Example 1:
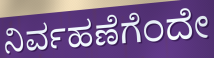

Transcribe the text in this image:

ನಿರ್ವಹಣೆಗೆಂದೇ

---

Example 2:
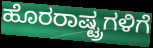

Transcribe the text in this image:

ಹೊರರಾಷ್ಟ್ರಗಳಿಗೆ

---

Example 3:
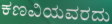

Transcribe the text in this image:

ಕಣವಿಯವರದು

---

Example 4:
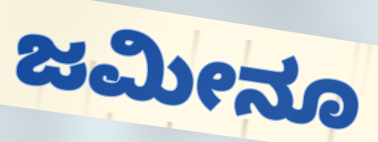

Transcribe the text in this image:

ಜಮೀನೂ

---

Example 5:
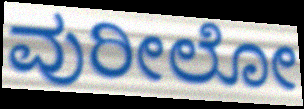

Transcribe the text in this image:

ವುರೀಲೋ